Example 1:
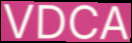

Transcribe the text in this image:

VDCA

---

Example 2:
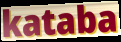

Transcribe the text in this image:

kataba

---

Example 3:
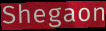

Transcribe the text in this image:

Shegaon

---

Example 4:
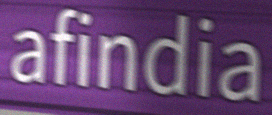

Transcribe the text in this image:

afindia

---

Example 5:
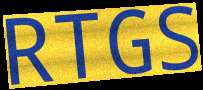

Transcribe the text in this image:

RTGS